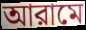
আরামে